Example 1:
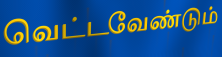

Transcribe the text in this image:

வெட்டவேண்டும்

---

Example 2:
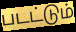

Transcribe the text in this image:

படட்டும்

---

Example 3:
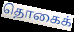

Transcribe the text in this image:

தொகைக்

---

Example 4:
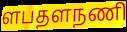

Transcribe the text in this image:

ளபதளநணி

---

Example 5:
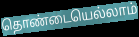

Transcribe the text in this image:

தொண்டையெல்லாம்